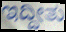
ಇದ್ದೀತು